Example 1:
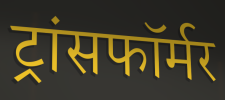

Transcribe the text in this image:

ट्रांसफॉर्मर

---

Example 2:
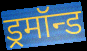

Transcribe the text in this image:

ड्रमॉन्ड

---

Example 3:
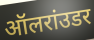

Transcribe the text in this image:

ऑलरांउडर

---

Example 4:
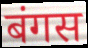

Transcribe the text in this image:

बंगस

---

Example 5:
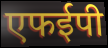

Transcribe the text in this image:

एफईपी